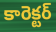
కారెక్టర్